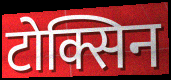
टोक्सिन